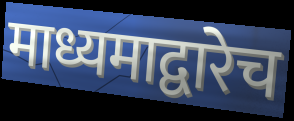
माध्यमाद्वारेच